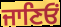
ਜਾਣਿਓਂ